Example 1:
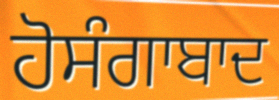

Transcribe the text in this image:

ਹੋਸੰਗਾਬਾਦ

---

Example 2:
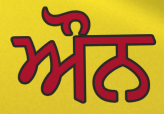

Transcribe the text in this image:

ਔਨ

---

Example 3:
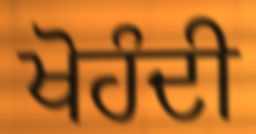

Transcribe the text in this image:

ਖੋਹੰਦੀ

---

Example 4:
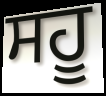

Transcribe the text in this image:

ਸਹੂ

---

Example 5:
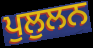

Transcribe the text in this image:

ਪੁਲੁਲਨ